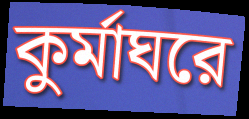
কুর্মাঘরে